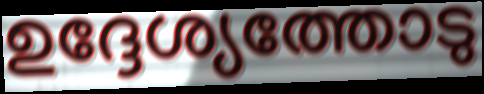
ഉദ്ദേശ്യത്തോടു